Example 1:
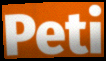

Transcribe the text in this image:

Peti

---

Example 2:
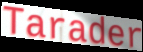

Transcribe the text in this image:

Tarader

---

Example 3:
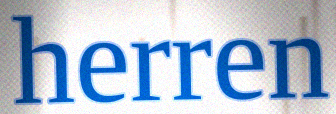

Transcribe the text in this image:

herren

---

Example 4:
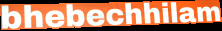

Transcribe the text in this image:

bhebechhilam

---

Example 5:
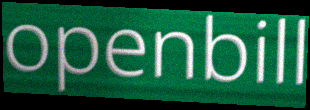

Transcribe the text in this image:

openbill